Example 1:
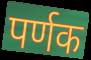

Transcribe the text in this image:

पर्णक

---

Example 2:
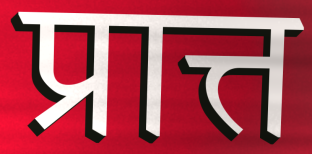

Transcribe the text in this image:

प्रात्त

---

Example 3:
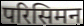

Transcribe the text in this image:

परिसिमन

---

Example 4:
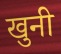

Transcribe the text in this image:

खुनी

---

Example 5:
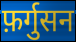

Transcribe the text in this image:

फ़र्गुसन